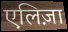
एलिज़ा